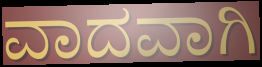
ವಾದವಾಗಿ